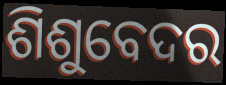
ଶିଶୁବେଦର